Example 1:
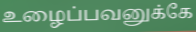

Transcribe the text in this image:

உழைப்பவனுக்கே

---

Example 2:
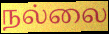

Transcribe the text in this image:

நல்லை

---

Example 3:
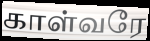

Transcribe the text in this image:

காள்வரே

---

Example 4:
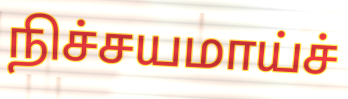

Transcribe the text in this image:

நிச்சயமாய்ச்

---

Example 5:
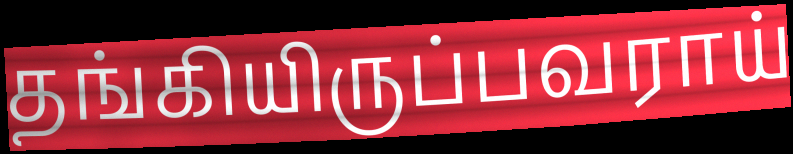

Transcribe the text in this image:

தங்கியிருப்பவராய்